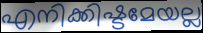
എനിക്കിഷ്ടമേയല്ല